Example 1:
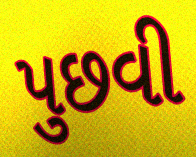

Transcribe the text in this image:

પુછવી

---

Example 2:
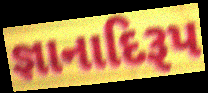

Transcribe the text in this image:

જ્ઞાનાદિરૂપ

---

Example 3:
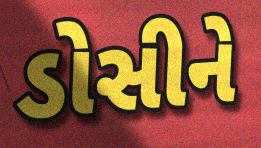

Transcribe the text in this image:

ડોસીને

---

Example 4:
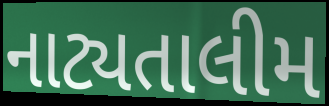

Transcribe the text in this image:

નાટ્યતાલીમ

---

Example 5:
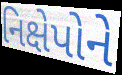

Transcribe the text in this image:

નિક્ષેપોને